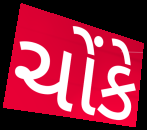
ચોંકે